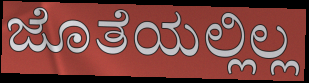
ಜೊತೆಯಲ್ಲಿಲ್ಲ